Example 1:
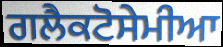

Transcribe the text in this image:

ਗਲੈਕਟੋਸੇਮੀਆ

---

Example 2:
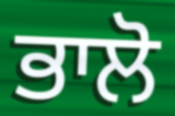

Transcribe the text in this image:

ਭਾਲੋ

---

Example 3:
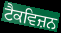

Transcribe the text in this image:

ਟੈਕਵਿਜ਼ਨ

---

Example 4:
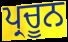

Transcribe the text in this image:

ਪ੍ਰਚੂਨ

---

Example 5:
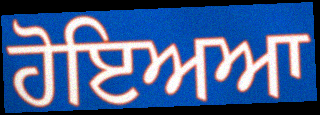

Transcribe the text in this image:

ਹੋਇਅਆ